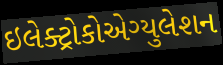
ઇલેક્ટ્રોકોએગ્યુલેશન